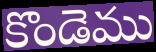
కొండెము